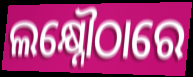
ଲକ୍ଷ୍ନୌଠାରେ